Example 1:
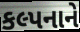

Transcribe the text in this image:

કલ્પનાને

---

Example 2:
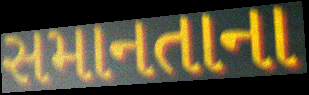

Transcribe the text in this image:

સમાનતાના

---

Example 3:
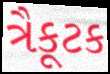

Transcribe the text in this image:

ત્રૈકૂટક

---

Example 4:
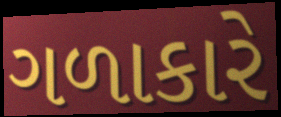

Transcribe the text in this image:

ગળાકારે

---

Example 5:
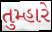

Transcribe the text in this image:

તુમ્હારે